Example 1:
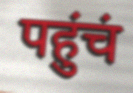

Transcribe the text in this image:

पहुंचं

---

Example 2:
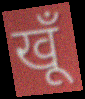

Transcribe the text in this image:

खूँ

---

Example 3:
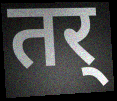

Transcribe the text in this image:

तर्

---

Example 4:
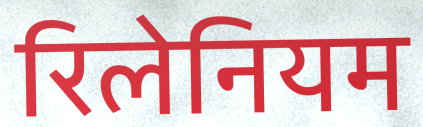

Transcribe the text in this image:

रिलेनियम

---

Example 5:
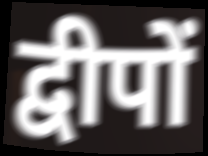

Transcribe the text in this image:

द्वीपों